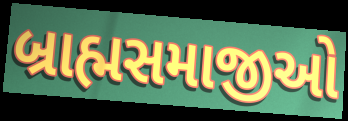
બ્રાહ્મસમાજીઓ